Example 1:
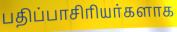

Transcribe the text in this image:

பதிப்பாசிரியர்களாக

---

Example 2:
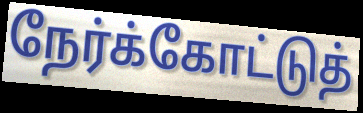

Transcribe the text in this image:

நேர்க்கோட்டுத்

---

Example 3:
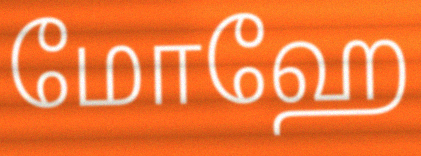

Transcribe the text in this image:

மோஹே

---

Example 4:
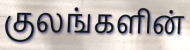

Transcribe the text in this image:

குலங்களின்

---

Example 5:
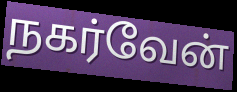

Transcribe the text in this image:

நகர்வேன்